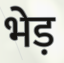
भेड़